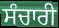
ਸੰਚਾਰੀ